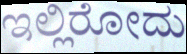
ಇಲ್ಲಿರೋದು